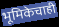
भूमिकेचाही